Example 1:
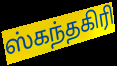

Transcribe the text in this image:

ஸ்கந்தகிரி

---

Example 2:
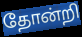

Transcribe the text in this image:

தோன்றி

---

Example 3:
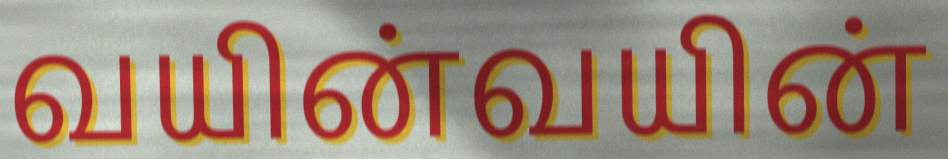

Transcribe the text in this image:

வயின்வயின்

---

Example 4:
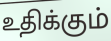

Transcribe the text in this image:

உதிக்கும்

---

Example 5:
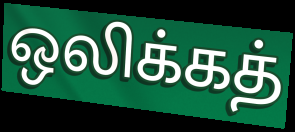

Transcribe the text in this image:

ஒலிக்கத்